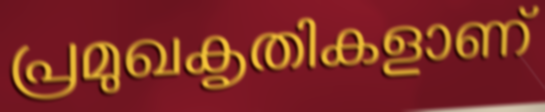
പ്രമുഖകൃതികളാണ്